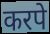
करपे